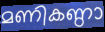
മണികണ്ഠാ